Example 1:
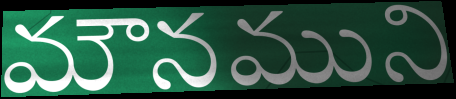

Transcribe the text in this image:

మౌనముని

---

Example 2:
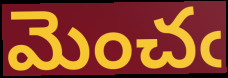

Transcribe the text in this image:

మెంచఁ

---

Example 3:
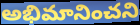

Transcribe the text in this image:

అభిమానించని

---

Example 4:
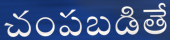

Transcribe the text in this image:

చంపబడితే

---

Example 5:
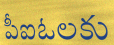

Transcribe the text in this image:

పీఐఓలకు